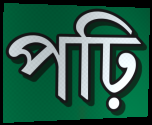
পঢ়ি